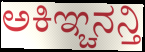
ಅಕಿಞ್ಚನನ್ತಿ